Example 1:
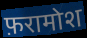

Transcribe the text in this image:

फ़रामोश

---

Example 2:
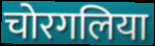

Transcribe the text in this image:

चोरगलिया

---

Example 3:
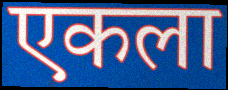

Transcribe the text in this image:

एकला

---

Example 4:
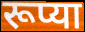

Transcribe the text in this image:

रूप्या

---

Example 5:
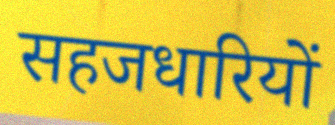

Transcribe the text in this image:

सहजधारियों